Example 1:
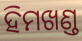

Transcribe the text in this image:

ହିମଖଣ୍ଡ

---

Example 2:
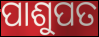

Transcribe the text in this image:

ପାଶୁପତ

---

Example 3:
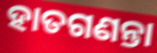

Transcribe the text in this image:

ହାତଗଣନ୍ତା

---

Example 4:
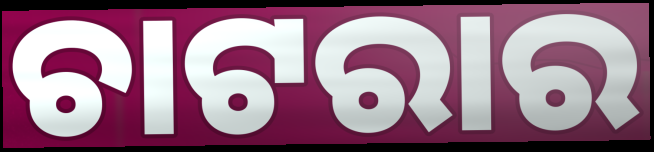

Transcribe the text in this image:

ଚାଟରାର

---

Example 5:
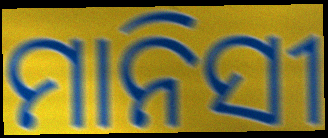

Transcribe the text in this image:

ମାନିସୀ